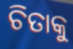
ଚିତାକୁ